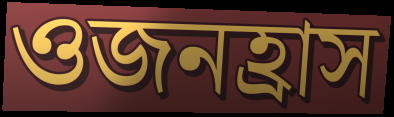
ওজনহ্রাস